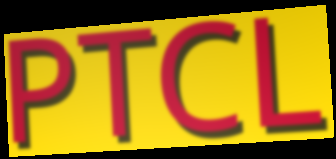
PTCL